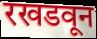
रखडवून